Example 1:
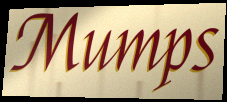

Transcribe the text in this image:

Mumps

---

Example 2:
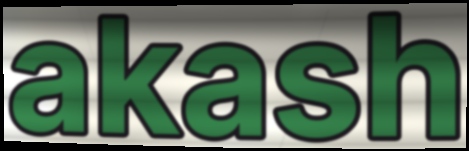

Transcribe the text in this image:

akash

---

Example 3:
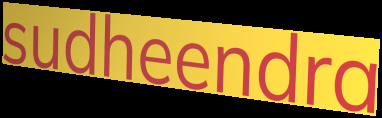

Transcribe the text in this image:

sudheendra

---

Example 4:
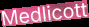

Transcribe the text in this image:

Medlicott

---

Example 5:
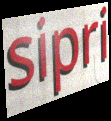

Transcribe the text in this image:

sipri